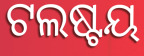
ଟଲଷ୍ଟୟ